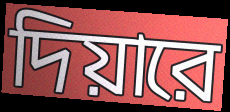
দিয়ারে